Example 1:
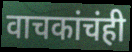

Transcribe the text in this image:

वाचकांचंही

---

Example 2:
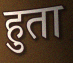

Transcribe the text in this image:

हुता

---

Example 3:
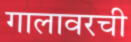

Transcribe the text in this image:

गालावरची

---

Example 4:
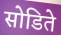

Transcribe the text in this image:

सोडिते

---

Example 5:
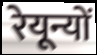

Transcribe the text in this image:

रेयून्यों